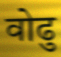
वोढु